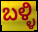
ಬಳ್ಳಿ